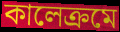
কালেক্রমে